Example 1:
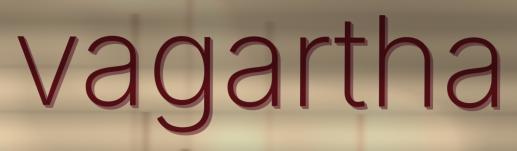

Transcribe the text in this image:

vagartha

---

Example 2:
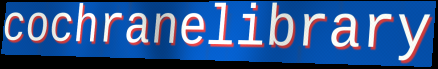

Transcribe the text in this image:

cochranelibrary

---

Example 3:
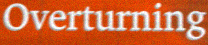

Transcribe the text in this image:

Overturning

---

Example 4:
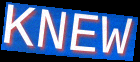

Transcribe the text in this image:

KNEW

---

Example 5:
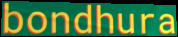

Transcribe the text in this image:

bondhura